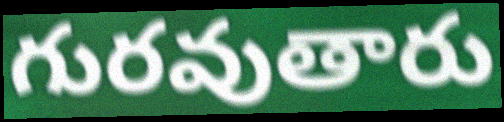
గురవుతారు